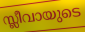
സ്ലീവായുടെ